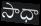
సాధా